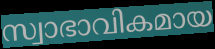
സ്വാഭാവികമായ